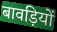
बावड़ियों